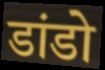
डांडो